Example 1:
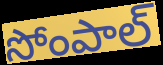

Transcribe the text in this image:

సోంపాల్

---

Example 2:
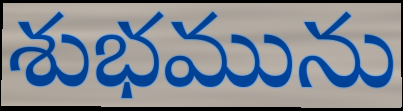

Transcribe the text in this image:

శుభమును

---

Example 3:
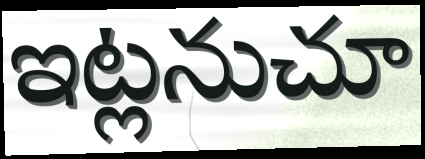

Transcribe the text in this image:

ఇట్లనుచూ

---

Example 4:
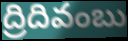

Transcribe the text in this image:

ద్రిదివంబు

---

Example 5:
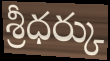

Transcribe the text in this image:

శ్రీధర్కు